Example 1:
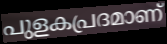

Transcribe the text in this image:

പുളകപ്രദമാണ്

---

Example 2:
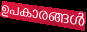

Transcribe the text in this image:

ഉപകാരങ്ങൾ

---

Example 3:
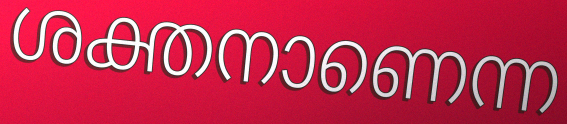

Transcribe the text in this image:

ശക്തനാണെന്ന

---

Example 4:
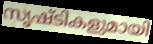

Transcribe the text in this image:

സൃഷ്ടികളുമായി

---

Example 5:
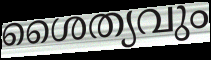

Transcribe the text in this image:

ശൈത്യവും